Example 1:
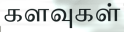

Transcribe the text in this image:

களவுகள்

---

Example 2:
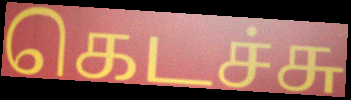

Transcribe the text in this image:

கெடச்சு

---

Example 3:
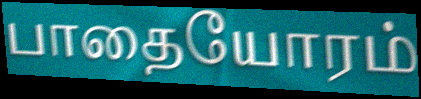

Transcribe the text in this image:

பாதையோரம்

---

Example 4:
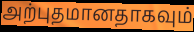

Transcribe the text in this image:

அற்புதமானதாகவும்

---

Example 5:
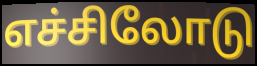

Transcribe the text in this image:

எச்சிலோடு